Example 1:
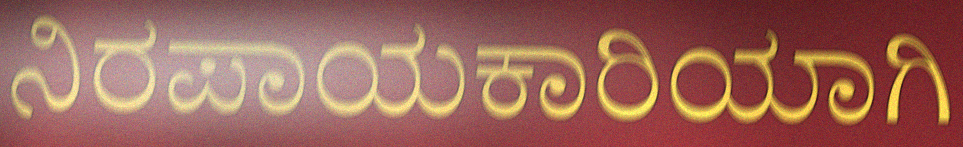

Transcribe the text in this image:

ನಿರಪಾಯಕಾರಿಯಾಗಿ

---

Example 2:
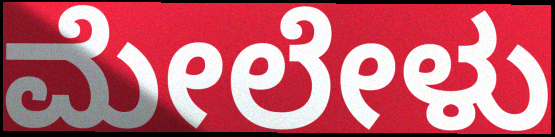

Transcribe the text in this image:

ಮೇಲೇಳು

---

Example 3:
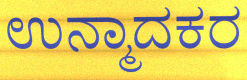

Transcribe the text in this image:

ಉನ್ಮಾದಕರ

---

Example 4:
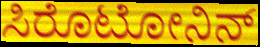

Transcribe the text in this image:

ಸಿರೊಟೋನಿನ್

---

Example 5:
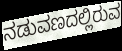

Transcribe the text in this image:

ನಡುವಣದಲ್ಲಿರುವ